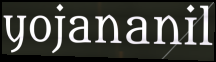
yojananil